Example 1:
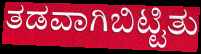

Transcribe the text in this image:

ತಡವಾಗಿಬಿಟ್ಟಿತು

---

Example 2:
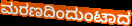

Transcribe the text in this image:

ಮರಣದಿಂದುಂಟಾದ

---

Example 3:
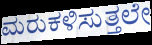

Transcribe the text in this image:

ಮರುಕಳಿಸುತ್ತಲೇ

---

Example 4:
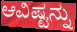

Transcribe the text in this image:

ಆವಿಷ್ಟನ್ನು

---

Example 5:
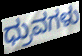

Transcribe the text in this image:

ಧ್ರುವಗಳು